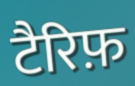
टैरिफ़